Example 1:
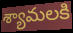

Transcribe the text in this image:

శ్యామలకి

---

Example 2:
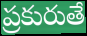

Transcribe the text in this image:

ప్రకురుతే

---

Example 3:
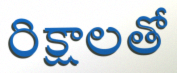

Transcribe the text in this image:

రిక్షాలతో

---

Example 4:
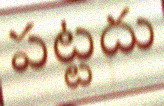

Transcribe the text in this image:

పట్టదు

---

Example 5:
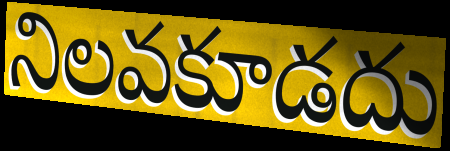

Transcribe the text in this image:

నిలవకూడదు